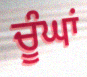
ਚੂੰਘਾਂ